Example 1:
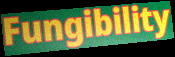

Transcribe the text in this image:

Fungibility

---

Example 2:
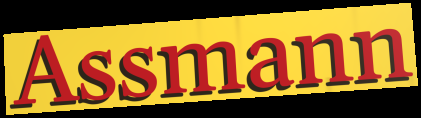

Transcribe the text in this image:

Assmann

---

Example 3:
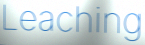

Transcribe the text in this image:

Leaching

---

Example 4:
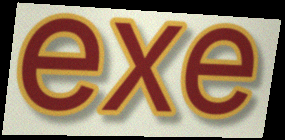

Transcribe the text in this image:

exe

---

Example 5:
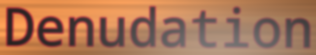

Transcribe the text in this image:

Denudation